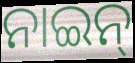
ନାଇନ୍